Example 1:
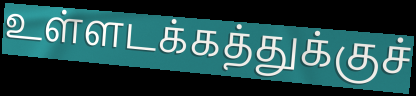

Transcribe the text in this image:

உள்ளடக்கத்துக்குச்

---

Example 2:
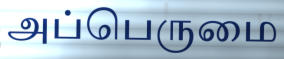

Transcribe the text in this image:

அப்பெருமை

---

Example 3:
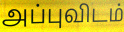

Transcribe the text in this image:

அப்புவிடம்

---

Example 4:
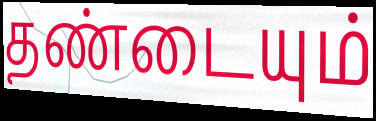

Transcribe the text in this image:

தண்டையும்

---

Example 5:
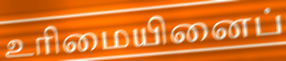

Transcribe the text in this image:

உரிமையினைப்